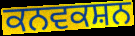
ਕਨਵਕਸ਼ਨ